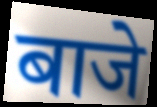
बाजे